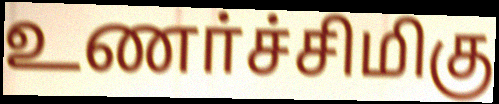
உணர்ச்சிமிகு